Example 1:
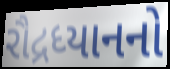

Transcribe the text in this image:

રૌદ્રધ્યાનનો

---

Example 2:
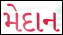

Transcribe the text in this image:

મેદાન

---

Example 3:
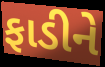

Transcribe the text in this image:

ફાડીને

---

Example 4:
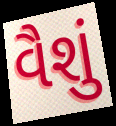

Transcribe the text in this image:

વૈશું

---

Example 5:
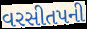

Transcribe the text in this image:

વરસીતપની